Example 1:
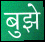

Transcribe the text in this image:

बुझे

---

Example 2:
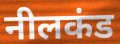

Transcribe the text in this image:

नीलकंड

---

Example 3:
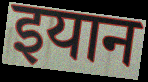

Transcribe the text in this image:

इयान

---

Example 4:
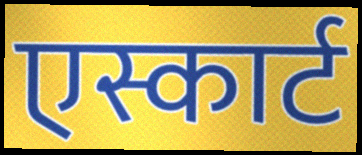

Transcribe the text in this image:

एस्कार्ट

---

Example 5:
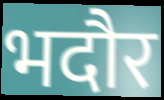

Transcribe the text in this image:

भदौर